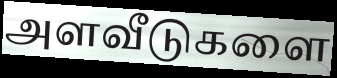
அளவீடுகளை